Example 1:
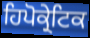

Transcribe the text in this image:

ਹਿਪੋਕ੍ਰੇਟਿਕ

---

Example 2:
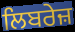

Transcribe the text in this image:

ਲਿਬਰੇਜ਼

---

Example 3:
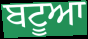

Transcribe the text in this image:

ਬਟੂਆ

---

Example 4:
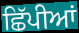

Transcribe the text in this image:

ਛਿੱਪੀਆਂ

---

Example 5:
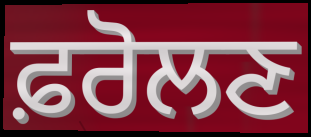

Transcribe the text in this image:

ਫ਼ਰੋਲਣ